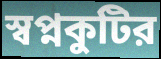
স্বপ্নকুটির